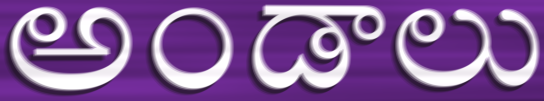
అండాలు